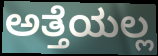
ಅತ್ತೆಯಲ್ಲ